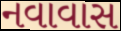
નવાવાસ